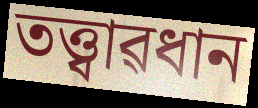
তত্ত্বাৱধান